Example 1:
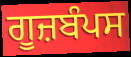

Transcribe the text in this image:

ਗੂਜ਼ਬੰਪਸ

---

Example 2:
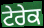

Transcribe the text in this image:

ਟੇਰੇਕ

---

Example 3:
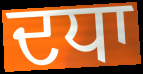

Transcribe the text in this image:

ਦਧਾ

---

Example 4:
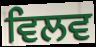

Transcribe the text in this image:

ਵਿਲਵ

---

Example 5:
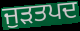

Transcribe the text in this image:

ਜੁੜਤਪਦ